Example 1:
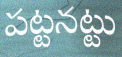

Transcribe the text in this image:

పట్టనట్టు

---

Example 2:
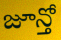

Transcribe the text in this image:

జూన్తో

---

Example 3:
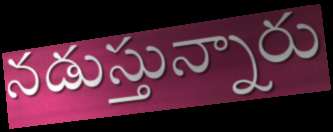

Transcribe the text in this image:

నడుస్తున్నారు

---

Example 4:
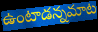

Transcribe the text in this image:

ఉంటాడన్నమాట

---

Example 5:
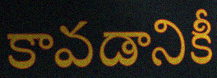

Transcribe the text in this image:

కావడానికీ